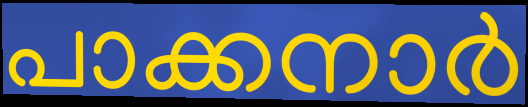
പാക്കനാർ